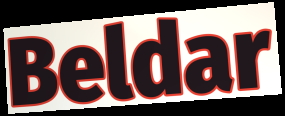
Beldar